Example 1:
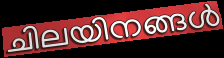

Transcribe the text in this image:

ചിലയിനങ്ങൾ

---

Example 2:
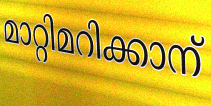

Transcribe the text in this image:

മാറ്റിമറിക്കാന്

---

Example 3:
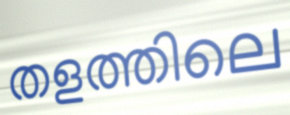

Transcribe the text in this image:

തളത്തിലെ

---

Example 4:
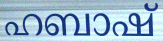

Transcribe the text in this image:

ഹബാഷ്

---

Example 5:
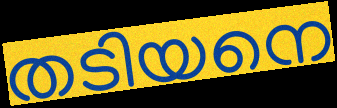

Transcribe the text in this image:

തടിയനെ